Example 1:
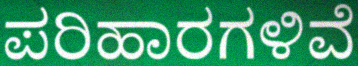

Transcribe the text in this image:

ಪರಿಹಾರಗಳಿವೆ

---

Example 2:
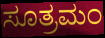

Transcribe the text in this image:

ಸೂತ್ರಮಂ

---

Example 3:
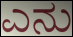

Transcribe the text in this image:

ಎನು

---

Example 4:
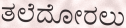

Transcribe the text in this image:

ತಲೆದೋರಲು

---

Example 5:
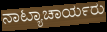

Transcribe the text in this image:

ನಾಟ್ಯಾಚಾರ್ಯರು